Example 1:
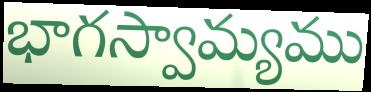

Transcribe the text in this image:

భాగస్వామ్యము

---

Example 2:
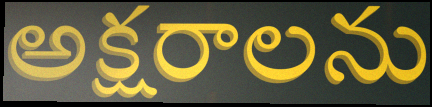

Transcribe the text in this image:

అక్షరాలను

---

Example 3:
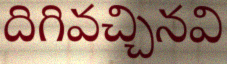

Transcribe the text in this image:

దిగివచ్చినవి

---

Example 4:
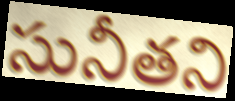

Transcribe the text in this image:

సునీతని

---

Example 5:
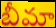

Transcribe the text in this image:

బీమా